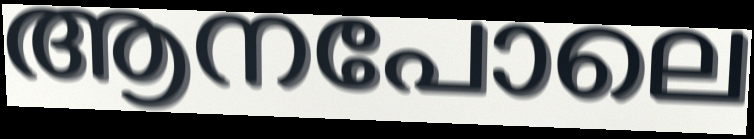
ആനപോലെ